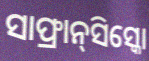
ସାଫ୍ରାନ୍‌ସିସ୍କୋ